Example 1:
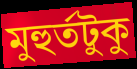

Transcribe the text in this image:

মুহুর্তটুকু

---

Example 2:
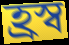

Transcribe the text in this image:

হ্রস্ব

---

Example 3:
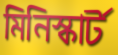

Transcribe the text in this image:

মিনিস্কার্ট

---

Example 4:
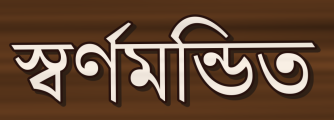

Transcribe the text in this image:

স্বর্ণমন্ডিত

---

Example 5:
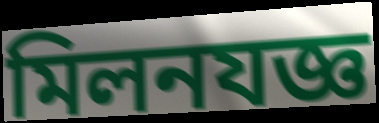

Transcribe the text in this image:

মিলনযজ্ঞ